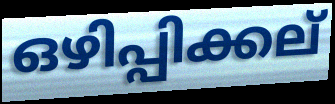
ഒഴിപ്പിക്കല്